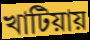
খাটিয়ায়